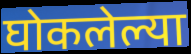
घोकलेल्या